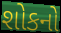
શોકનો